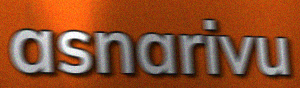
asnarivu